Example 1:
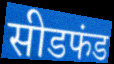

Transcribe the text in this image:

सीडफंड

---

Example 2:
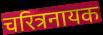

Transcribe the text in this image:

चरित्रनायक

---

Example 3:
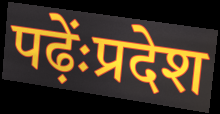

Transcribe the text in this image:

पढ़ेंःप्रदेश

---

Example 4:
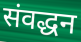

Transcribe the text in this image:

संवद्धन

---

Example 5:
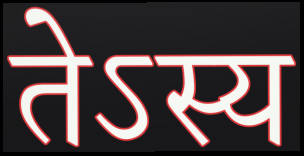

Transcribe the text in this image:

तेऽस्य